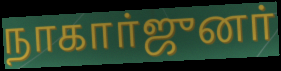
நாகார்ஜுனர்